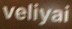
veliyai